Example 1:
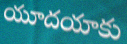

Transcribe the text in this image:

యూదయాకు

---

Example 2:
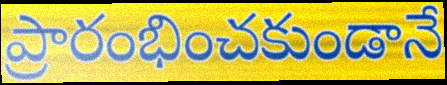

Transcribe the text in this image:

ప్రారంభించకుండానే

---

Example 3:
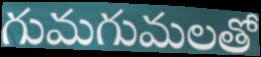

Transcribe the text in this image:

గుమగుమలతో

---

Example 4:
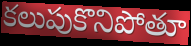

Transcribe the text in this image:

కలుపుకొనిపోతూ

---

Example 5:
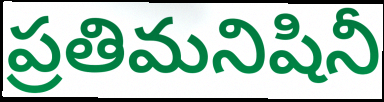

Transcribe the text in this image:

ప్రతిమనిషినీ